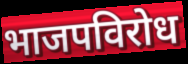
भाजपविरोध